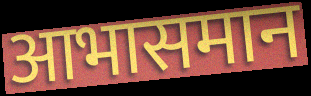
आभासमान